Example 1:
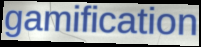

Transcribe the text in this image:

gamification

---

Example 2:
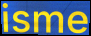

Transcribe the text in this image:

isme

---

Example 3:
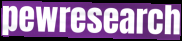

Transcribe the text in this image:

pewresearch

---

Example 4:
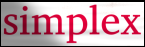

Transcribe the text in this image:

simplex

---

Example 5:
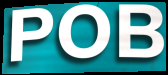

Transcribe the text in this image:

POB